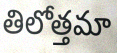
తిలోత్తమా